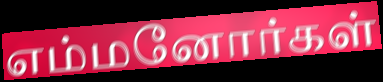
எம்மனோர்கள்